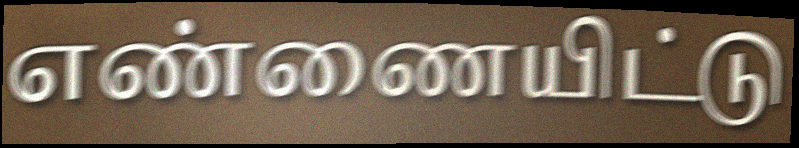
எண்ணையிட்டு